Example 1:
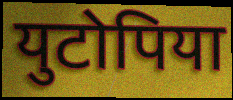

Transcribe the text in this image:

युटोपिया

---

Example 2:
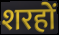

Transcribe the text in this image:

शरहों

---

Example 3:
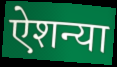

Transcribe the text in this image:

ऐशन्या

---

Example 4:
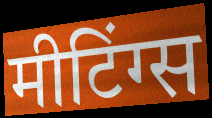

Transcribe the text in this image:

मीटिंग्स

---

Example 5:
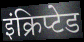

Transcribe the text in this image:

इंक्रिप्टेड